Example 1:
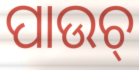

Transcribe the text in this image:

ପାଉଚ୍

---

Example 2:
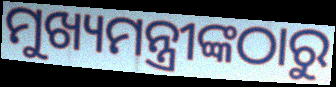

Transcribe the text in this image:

ମୁଖ୍ୟମନ୍ତ୍ରୀଙ୍କଠାରୁ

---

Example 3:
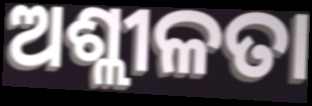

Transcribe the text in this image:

ଅଶ୍ଲୀଳତା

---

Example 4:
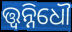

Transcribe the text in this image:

ତ୍ତ୍ଵନ୍ନିଧୌ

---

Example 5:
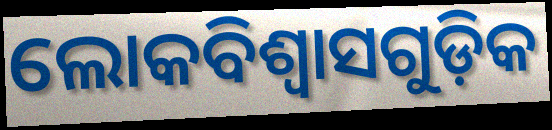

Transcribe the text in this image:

ଲୋକବିଶ୍ୱାସଗୁଡ଼ିକ